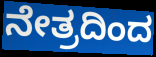
ನೇತ್ರದಿಂದ